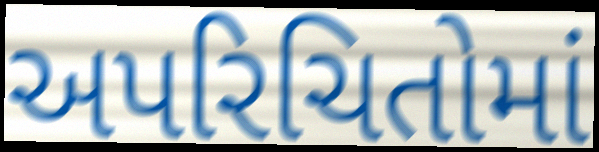
અપરિચિતોમાં